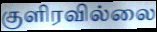
குளிரவில்லை